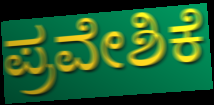
ಪ್ರವೇಶಿಕೆ